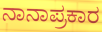
ನಾನಾಪ್ರಕಾರ